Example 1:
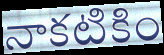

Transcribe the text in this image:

నాకటికిం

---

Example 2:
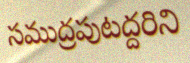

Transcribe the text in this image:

సముద్రపుటద్దరిని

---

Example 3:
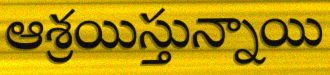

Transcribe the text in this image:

ఆశ్రయిస్తున్నాయి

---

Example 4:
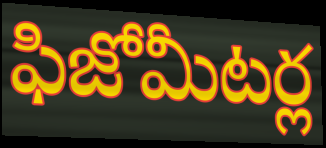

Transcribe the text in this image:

ఫిజోమీటర్ల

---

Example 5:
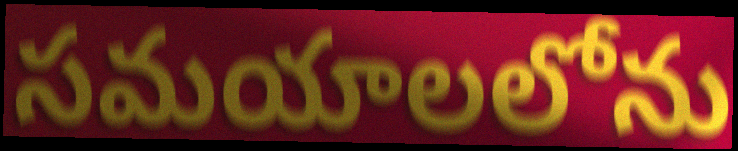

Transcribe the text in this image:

సమయాలలోను